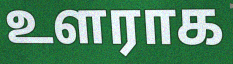
உளராக